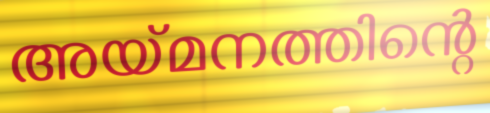
അയ്മനത്തിന്റെ